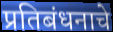
प्रतिबंधनाचे